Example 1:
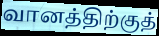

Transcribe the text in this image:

வானத்திற்குத்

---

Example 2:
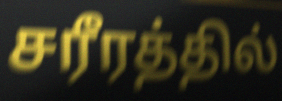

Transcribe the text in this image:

சரீரத்தில்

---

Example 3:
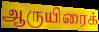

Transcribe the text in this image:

ஆருயிரைக்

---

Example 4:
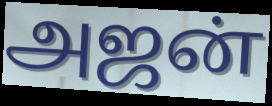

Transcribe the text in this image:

அஜன்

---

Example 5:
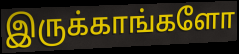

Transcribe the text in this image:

இருக்காங்களோ